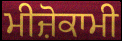
ਮੀਜ਼ੋਕਾਮੀ